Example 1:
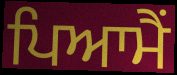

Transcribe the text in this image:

ਪਿਆਮੈਂ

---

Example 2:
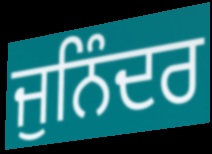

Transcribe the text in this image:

ਜੁਨਿੰਦਰ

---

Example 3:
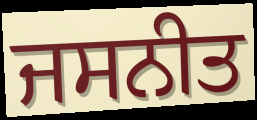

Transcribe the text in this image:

ਜਸਨੀਤ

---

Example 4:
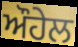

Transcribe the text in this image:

ਔਹੇਲ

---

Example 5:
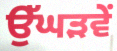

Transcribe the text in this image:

ਉੱਘੜਵੇਂ